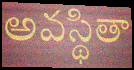
అవస్థితా